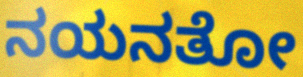
ನಯನತೋ